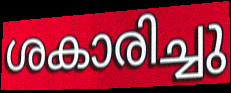
ശകാരിച്ചു